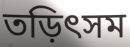
তড়িৎসম